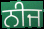
ਨੀਜ